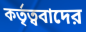
কর্তৃত্ববাদের